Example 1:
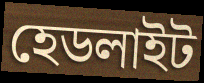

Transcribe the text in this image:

হেডলাইট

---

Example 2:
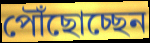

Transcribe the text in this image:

পৌঁছোচ্ছেন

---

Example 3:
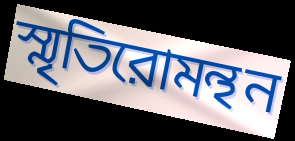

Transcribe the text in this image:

স্মৃতিরোমন্থন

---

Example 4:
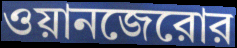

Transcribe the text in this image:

ওয়ানজেরোর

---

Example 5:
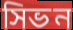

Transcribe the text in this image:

সিভন